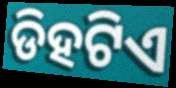
ଡିହଟିଏ